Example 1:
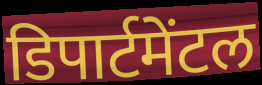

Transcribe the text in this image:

डिपार्टमेंटल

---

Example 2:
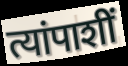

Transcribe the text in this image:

त्यांपाशीं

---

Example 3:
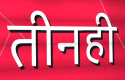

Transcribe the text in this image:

तीनही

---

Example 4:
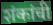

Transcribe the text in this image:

शंकांची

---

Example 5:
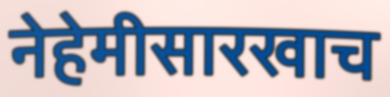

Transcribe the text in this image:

नेहेमीसारखाच